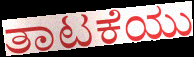
ತಾಟಕೆಯು